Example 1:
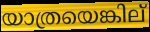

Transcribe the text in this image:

യാത്രയെങ്കില്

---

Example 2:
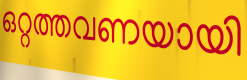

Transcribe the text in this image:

ഒറ്റത്തവണയായി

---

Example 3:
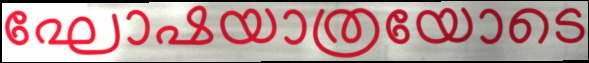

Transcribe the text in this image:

ഘോഷയാത്രയോടെ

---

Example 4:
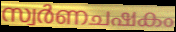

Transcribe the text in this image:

സ്വർണചഷകം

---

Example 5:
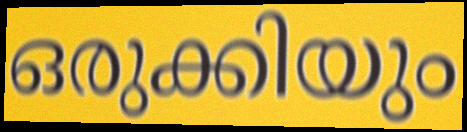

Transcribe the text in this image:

ഒരുക്കിയും